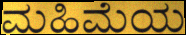
ಮಹಿಮೆಯ